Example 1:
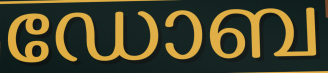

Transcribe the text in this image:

ഡോബ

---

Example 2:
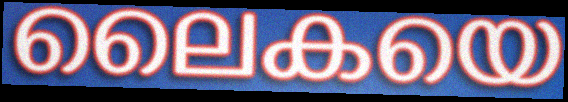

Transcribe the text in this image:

ലൈകയെ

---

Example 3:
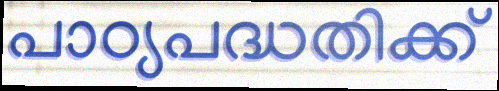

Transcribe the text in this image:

പാഠ്യപദ്ധതിക്ക്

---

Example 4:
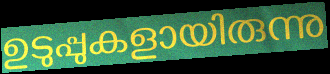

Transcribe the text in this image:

ഉടുപ്പുകളായിരുന്നു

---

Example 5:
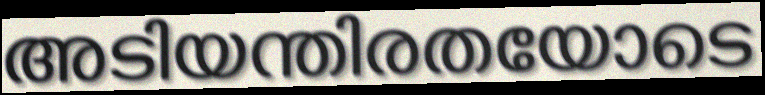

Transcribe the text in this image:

അടിയന്തിരതയോടെ